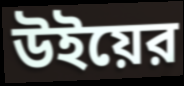
উইয়ের